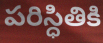
పరిస్ధితికి